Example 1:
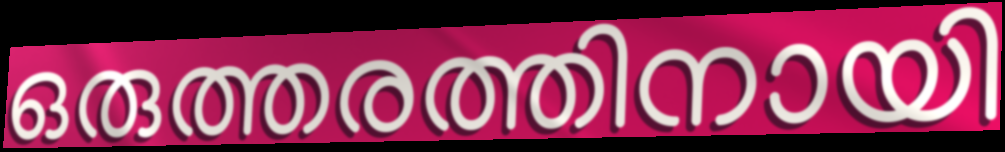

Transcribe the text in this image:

ഒരുത്തരത്തിനായി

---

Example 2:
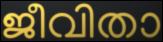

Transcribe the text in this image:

ജീവിതാ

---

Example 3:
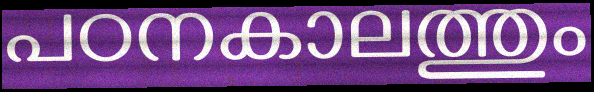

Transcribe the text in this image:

പഠനകാലത്തും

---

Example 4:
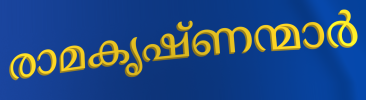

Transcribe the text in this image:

രാമകൃഷ്ണന്മാർ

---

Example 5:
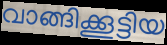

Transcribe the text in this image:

വാങ്ങിക്കൂട്ടിയ